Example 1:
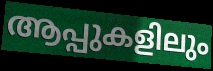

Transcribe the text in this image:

ആപ്പുകളിലും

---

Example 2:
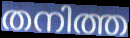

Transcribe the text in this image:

തനിത്ത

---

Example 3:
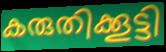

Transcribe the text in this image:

കരുതിക്കൂട്ടി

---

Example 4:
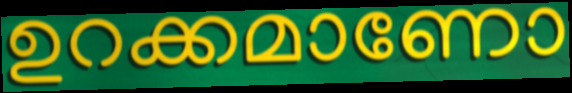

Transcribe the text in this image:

ഉറക്കമാണോ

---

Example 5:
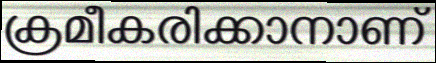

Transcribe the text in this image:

ക്രമീകരിക്കാനാണ്